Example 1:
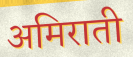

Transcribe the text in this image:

अमिराती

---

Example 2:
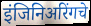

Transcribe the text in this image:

इंजिनिअरिंगचे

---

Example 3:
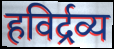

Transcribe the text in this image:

हविर्द्रव्य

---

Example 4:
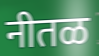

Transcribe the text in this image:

नीतळ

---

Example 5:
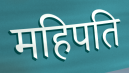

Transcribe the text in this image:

महिपति